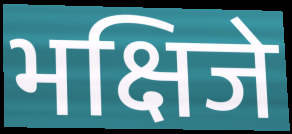
भक्षिजे